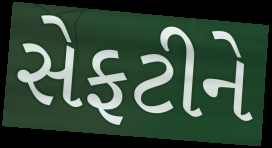
સેફટીને